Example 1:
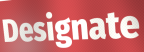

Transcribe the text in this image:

Designate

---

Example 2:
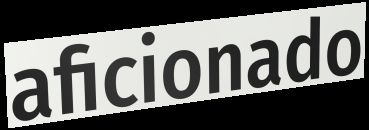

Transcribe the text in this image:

aficionado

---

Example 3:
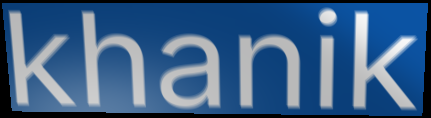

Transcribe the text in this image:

khanik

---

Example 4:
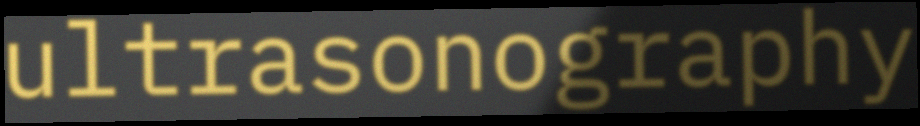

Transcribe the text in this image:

ultrasonography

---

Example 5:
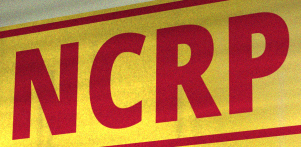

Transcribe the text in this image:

NCRP